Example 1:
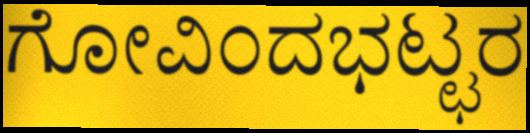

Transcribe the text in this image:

ಗೋವಿಂದಭಟ್ಟರ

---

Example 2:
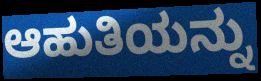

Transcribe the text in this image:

ಆಹುತಿಯನ್ನು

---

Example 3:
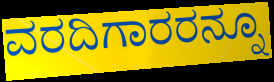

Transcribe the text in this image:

ವರದಿಗಾರರನ್ನೂ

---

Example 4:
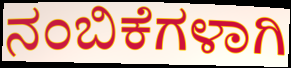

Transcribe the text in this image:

ನಂಬಿಕೆಗಳಾಗಿ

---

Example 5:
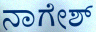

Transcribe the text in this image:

ನಾಗೇಶ್